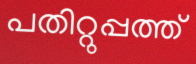
പതിറ്റുപ്പത്ത്